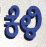
ಕೆಳಿ